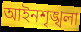
আইনশৃঙ্খলা